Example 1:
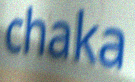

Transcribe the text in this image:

chaka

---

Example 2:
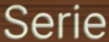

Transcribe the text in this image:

Serie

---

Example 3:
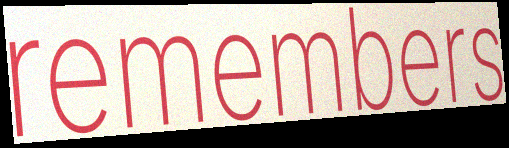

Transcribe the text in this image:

remembers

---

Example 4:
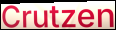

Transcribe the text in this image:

Crutzen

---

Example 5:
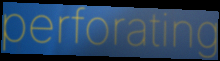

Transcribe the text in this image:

perforating